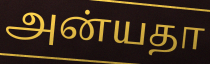
அன்யதா